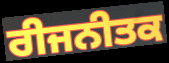
ਰੀਜਨੀਤਕ